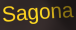
Sagona